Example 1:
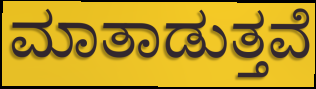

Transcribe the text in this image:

ಮಾತಾಡುತ್ತವೆ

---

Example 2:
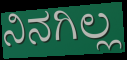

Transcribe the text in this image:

ನಿನಗಿಲ್ಲ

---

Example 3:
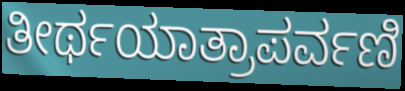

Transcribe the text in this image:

ತೀರ್ಥಯಾತ್ರಾಪರ್ವಣಿ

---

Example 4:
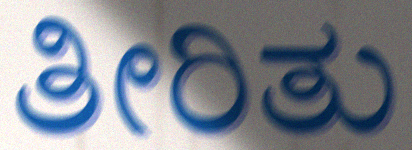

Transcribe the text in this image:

ತೀರಿತು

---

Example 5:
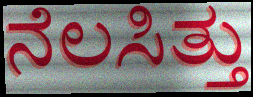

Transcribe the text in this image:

ನೆಲಸಿತ್ತು